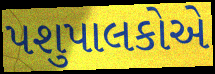
પશુપાલકોએ